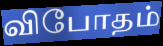
விபோதம்